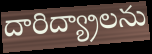
దారిద్య్రాలను